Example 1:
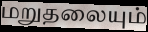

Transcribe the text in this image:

மறுதலையும்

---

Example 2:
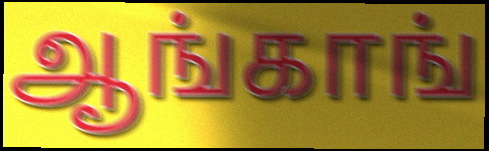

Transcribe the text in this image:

ஆங்காங்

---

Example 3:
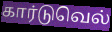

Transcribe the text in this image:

கார்டுவெல்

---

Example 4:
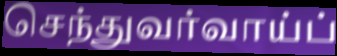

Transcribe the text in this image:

செந்துவர்வாய்ப்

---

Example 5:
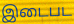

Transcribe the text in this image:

இடைபட